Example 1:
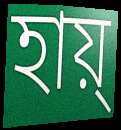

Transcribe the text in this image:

হায়্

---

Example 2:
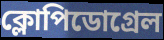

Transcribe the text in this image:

ক্লোপিডোগ্রেল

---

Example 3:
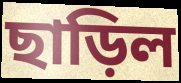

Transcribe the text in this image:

ছাড়িল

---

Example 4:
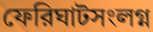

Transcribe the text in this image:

ফেরিঘাটসংলগ্ন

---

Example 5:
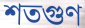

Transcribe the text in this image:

শতগুণ